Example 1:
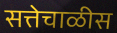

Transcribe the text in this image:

सत्तेचाळीस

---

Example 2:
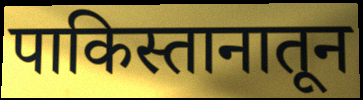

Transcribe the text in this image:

पाकिस्तानातून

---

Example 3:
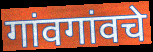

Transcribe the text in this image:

गांवगांवचे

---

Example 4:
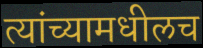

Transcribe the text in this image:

त्यांच्यामधीलच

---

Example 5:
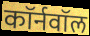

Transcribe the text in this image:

कॉर्नवॉल